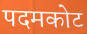
पदमकोट